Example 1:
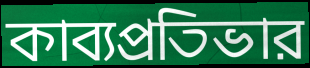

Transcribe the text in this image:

কাব্যপ্রতিভার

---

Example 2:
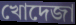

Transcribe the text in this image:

খোদেজা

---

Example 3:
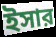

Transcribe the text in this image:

ইসার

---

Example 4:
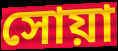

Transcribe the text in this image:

সোয়া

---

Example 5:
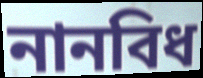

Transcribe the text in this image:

নানবিধ